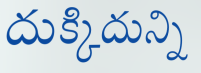
దుక్కిదున్ని